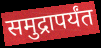
समुद्रापर्यंत